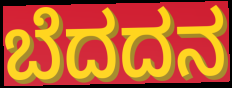
ಬೆದದನ